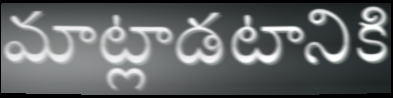
మాట్లాడటానికి